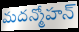
మదన్మోహన్